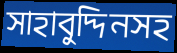
সাহাবুদ্দিনসহ